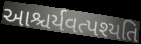
આશ્ચર્યવત્પશ્યતિ